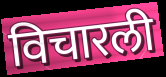
विचारली